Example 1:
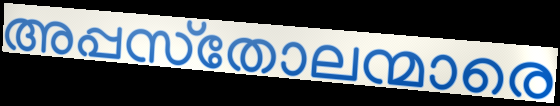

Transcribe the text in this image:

അപ്പസ്‌തോലന്മാരെ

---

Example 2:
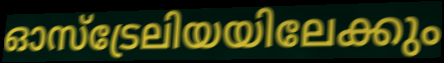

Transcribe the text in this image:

ഓസ്ട്രേലിയയിലേക്കും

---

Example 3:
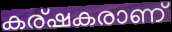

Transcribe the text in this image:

കര്ഷകരാണ്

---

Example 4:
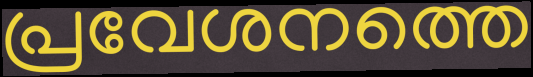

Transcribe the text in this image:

പ്രവേശനത്തെ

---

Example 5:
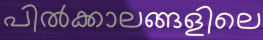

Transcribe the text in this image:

പിൽക്കാലങ്ങളിലെ